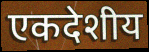
एकदेशीय